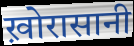
ख़ोरासानी